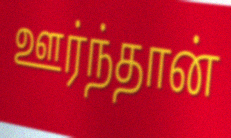
ஊர்ந்தான்